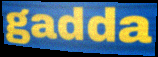
gadda